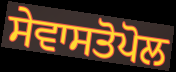
ਸੇਵਾਸਤੋਪੋਲ